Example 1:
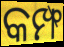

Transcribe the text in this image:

କମ୍ଫ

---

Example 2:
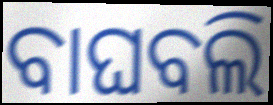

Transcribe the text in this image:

ବାଘବଲି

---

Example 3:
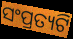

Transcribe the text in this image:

ସଂପ୍ରତ୍ୟଟି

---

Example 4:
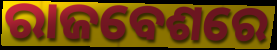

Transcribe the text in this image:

ରାଜବେଶରେ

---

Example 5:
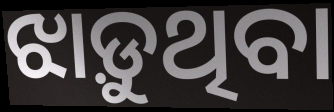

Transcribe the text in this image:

ଝାଡ଼ୁଥିବା